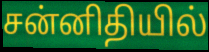
சன்னிதியில்